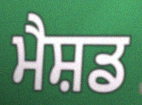
ਮੈਸ਼ਡ